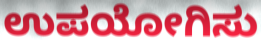
ಉಪಯೋಗಿಸು